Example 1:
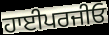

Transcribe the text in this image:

ਹਾਈਪਰਜੀਓ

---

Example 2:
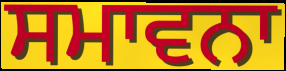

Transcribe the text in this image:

ਸਮਾਵਨਾ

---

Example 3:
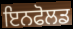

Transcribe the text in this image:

ਇਨਫੋਲਡ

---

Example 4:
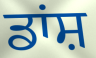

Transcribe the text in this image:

ਡਾਂਸ਼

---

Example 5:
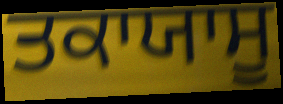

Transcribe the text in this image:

ਤਕਾਯਾਸੂ